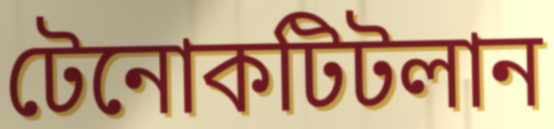
টেনোকটিটলান